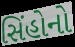
સિંહોનો